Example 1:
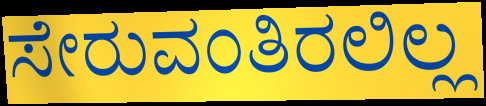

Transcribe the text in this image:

ಸೇರುವಂತಿರಲಿಲ್ಲ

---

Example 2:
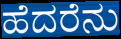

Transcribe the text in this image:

ಹೆದರೆನು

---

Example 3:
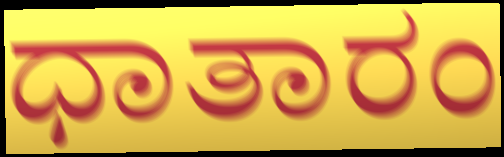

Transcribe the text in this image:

ಧಾತಾರಂ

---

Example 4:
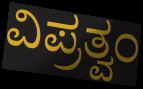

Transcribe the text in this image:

ವಿಪ್ರತ್ವಂ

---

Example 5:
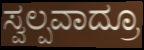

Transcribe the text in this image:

ಸ್ವಲ್ಪವಾದ್ರೂ